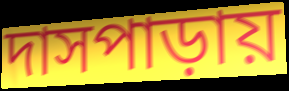
দাসপাড়ায়